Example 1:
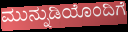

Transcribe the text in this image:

ಮುನ್ನುಡಿಯೊಂದಿಗೆ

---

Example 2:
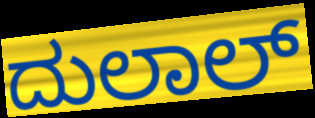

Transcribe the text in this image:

ದುಲಾಲ್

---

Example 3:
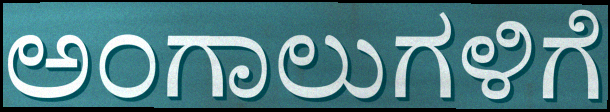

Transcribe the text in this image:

ಅಂಗಾಲುಗಳಿಗೆ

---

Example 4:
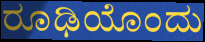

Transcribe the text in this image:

ರೂಢಿಯೊಂದು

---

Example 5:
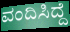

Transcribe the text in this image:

ವಂದಿಸಿದ್ದೆ